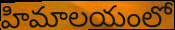
హిమాలయంలో